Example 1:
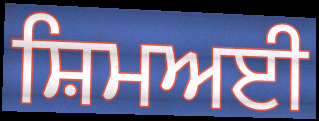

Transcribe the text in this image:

ਸ਼ਿਮਅਈ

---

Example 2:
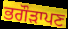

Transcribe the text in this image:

ਭਗੌੜਾਪਣ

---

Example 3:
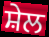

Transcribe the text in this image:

ਸ਼ੇਲ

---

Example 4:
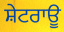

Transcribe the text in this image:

ਸ਼ੇਟਰਾਊ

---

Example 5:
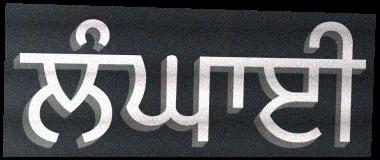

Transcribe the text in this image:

ਲੰਘਾਈ